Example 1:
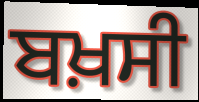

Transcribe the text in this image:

ਬਖ਼ਸੀ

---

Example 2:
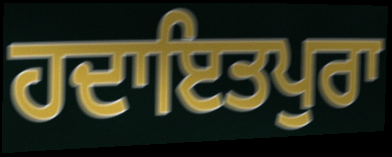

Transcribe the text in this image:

ਹਦਾਇਤਪੁਰਾ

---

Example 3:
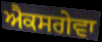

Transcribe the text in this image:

ਐਕਸਗੇਵਾ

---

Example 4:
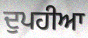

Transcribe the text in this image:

ਦੁਪਹੀਆ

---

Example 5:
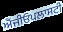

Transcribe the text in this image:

ਐਂਜੀਓਪਲਾਸਟੀ